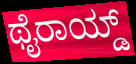
ಥೈರಾಯ್ಡ್